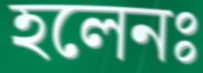
হলেনঃ